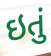
ઇતું